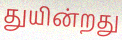
துயின்றது